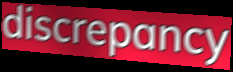
discrepancy